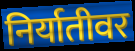
निर्यातीवर